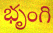
భృంగి